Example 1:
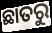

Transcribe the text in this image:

ଛାତରୁ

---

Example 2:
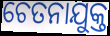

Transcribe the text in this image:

ଚେତନାଯୁକ୍ତ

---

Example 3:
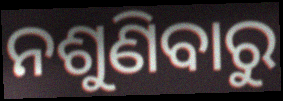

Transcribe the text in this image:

ନଶୁଣିବାରୁ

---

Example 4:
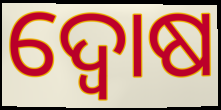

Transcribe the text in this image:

ଦ୍ୱୋଷ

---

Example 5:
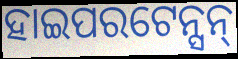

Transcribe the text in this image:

ହାଇପରଟେନ୍ସନ୍